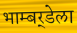
भाम्बर्डेला